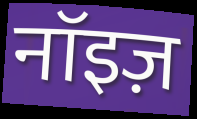
नॉइज़